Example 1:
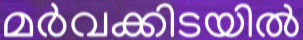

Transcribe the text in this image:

മർവക്കിടയിൽ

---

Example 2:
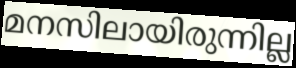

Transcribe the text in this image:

മനസിലായിരുന്നില്ല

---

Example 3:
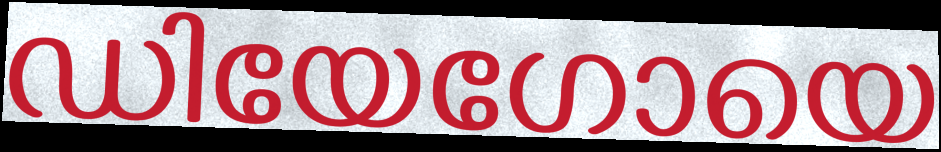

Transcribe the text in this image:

ഡിയേഗോയെ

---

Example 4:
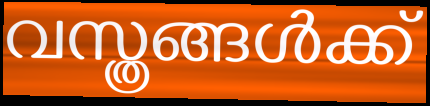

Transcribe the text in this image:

വസ്ത്രങ്ങൾക്ക്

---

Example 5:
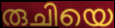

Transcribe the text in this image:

രുചിയെ